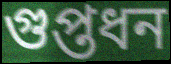
গুপ্তধন